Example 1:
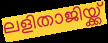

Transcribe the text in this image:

ലളിതാജിയ്ക്ക്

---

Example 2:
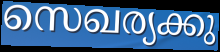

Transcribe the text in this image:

സെഖര്യക്കു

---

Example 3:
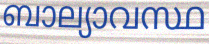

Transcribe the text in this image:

ബാല്യാവസ്ഥ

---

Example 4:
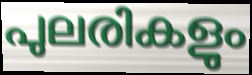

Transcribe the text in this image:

പുലരികളും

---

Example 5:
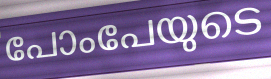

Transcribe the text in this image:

പോംപേയുടെ